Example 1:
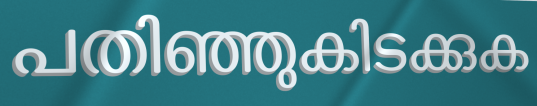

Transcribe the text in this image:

പതിഞ്ഞുകിടക്കുക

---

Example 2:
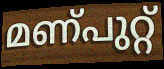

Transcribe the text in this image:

മണ്പുറ്റ്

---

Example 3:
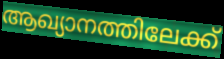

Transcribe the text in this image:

ആഖ്യാനത്തിലേക്ക്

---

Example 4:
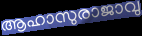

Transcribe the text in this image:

ആഹാസുരാജാവു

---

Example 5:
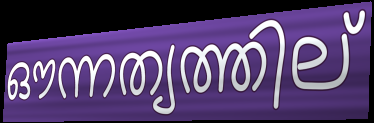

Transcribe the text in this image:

ഔന്നത്യത്തില്